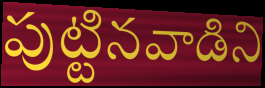
పుట్టినవాడిని